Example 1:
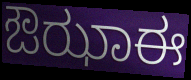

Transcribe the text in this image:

ಔಝಾಈ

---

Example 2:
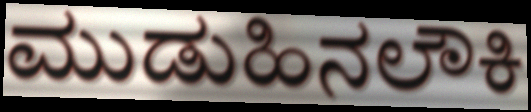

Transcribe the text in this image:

ಮುಡುಹಿನಲೌಕಿ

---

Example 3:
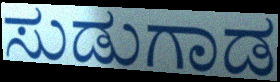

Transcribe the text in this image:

ಸುಡುಗಾಡ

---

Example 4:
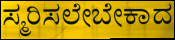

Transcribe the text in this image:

ಸ್ಮರಿಸಲೇಬೇಕಾದ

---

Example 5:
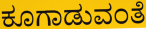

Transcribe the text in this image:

ಕೂಗಾಡುವಂತೆ